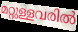
മറ്റുള്ളവരിൽ